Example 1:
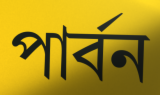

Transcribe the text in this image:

পার্বন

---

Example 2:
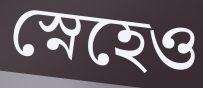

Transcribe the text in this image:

স্নেহেও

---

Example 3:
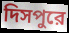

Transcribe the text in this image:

দিসপুরে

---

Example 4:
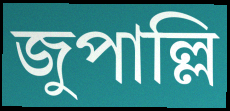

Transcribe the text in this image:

জুপাল্লি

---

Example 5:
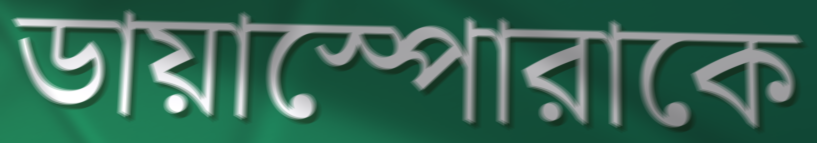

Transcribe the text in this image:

ডায়াস্পোরাকে